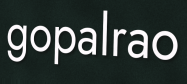
gopalrao